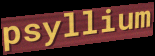
psyllium